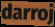
darroj